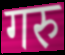
गरु